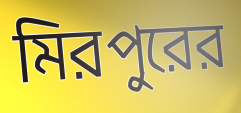
মিরপুরের